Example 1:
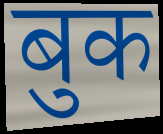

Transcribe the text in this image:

बुक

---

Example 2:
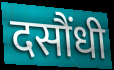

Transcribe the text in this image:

दसौंधी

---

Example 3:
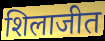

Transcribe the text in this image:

शिलाजीत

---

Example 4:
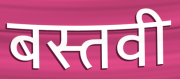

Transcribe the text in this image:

बस्तवी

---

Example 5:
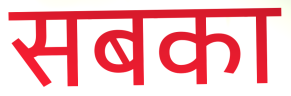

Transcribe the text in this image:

सबका